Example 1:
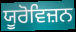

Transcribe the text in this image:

ਯੂਰੋਵਿਜ਼ਨ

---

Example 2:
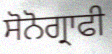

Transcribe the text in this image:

ਸੋਨੋਗ੍ਰਾਫੀ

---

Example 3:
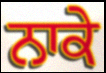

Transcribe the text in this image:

ਨਾਕੇ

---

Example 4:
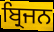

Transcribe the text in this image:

ਬ੍ਰਿਜਨ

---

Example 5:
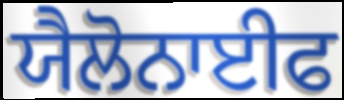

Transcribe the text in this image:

ਯੈਲੋਨਾਈਫ